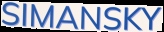
SIMANSKY